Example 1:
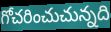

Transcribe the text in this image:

గోచరించుచున్నది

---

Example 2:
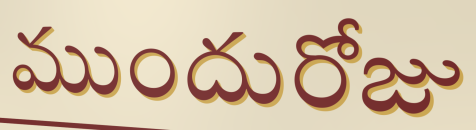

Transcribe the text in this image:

ముందురోజు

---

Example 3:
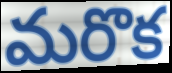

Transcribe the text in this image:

మరొక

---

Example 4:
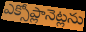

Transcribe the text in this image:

ఎక్సోప్లానెట్లను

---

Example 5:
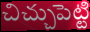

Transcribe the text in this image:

చిచ్చుపెట్టి